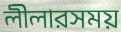
লীলারসময়